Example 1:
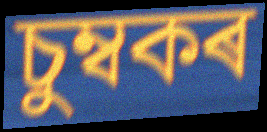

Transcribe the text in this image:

চুম্বকৰ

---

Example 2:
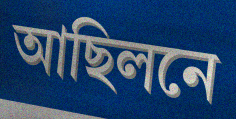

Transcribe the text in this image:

আছিলনে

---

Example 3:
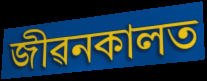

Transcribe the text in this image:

জীৱনকালত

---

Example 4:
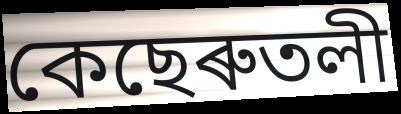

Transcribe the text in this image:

কেছেৰুতলী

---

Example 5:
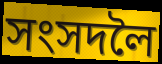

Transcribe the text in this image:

সংসদলৈ